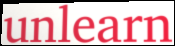
unlearn